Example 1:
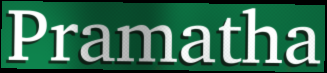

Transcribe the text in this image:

Pramatha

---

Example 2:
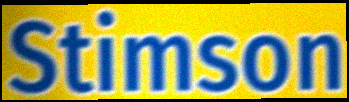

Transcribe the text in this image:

Stimson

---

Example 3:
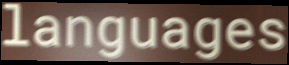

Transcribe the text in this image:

languages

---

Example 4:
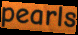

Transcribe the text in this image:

pearls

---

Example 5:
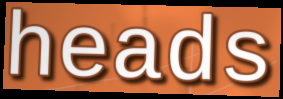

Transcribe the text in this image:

heads